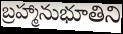
బ్రహ్మానుభూతిని